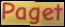
Paget